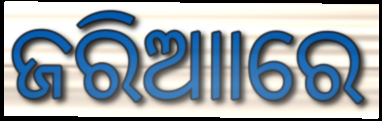
ଜରିଆାରେ